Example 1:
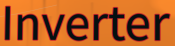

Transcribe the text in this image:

Inverter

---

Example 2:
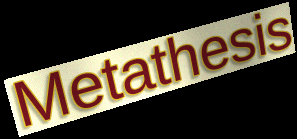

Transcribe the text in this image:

Metathesis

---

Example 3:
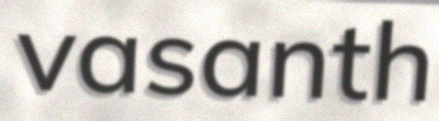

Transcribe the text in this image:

vasanth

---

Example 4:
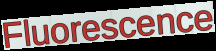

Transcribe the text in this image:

Fluorescence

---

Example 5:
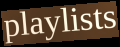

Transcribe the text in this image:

playlists